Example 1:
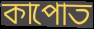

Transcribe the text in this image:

কাপোত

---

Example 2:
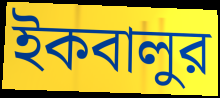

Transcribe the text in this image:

ইকবালুর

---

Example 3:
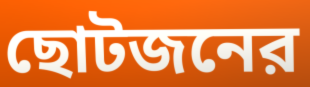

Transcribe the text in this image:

ছোটজনের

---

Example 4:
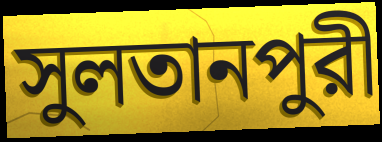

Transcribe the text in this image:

সুলতানপুরী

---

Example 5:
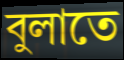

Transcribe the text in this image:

বুলাতে